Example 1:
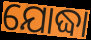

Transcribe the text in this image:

ଯୋଦ୍ଧା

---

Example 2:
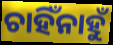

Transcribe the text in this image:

ଚାହିଁନାହୁଁ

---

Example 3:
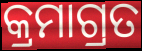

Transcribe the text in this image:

କ୍ରମାଗ୍ରତ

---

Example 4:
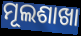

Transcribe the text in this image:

ମୂଲଶାଖା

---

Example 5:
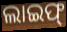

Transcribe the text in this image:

ଲାଇଫ୍